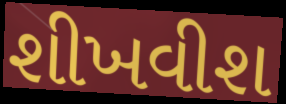
શીખવીશ